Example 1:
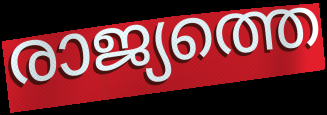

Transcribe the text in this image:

രാജ്യത്തെ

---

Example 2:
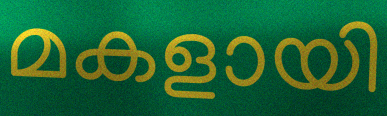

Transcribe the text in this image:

മകളായി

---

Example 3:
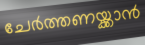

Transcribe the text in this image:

ചേർത്തണയ്ക്കാൻ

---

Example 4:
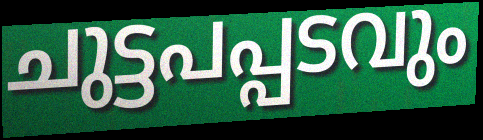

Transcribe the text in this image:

ചുട്ടപപ്പടവും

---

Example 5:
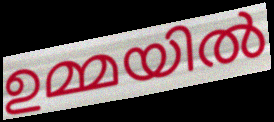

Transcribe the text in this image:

ഉമ്മയിൽ